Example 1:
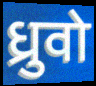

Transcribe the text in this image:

ध्रुवो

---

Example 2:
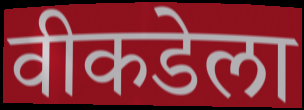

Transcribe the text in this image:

वीकडेला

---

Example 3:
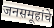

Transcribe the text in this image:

जनसमूहांचे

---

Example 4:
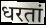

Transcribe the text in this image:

धरतां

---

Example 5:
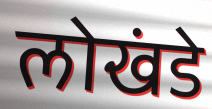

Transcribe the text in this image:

लोखंडे